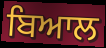
ਬਿਆਲ